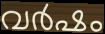
വർഷം